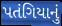
પતંગિયાનું